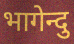
भागेन्दु